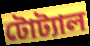
টোট্যাল